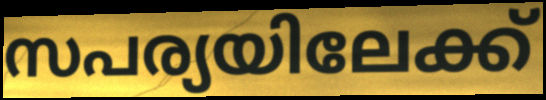
സപര്യയിലേക്ക്